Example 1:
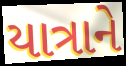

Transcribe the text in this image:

યાત્રાને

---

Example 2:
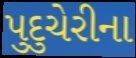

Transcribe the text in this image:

પુદુચેરીના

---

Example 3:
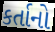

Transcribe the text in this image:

કર્તાનો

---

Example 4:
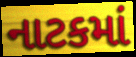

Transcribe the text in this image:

નાટકમાં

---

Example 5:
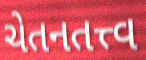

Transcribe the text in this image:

ચેતનતત્ત્વ